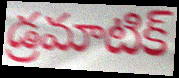
డ్రమాటిక్